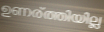
ഉണര്ത്തിയില്ല